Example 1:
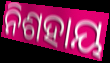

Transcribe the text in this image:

ନିଶହାୟ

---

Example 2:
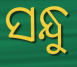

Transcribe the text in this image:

ସନ୍ଧୁ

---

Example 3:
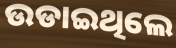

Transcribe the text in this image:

ଉଡାଇଥିଲେ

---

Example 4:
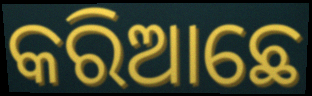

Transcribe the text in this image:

କରିଆଛେ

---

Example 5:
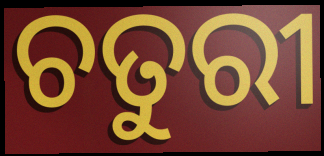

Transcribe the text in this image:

ଚତୁରୀ